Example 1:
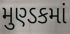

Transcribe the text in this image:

મુણ્ડકમાં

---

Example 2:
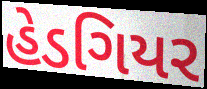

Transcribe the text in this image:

હેડગિયર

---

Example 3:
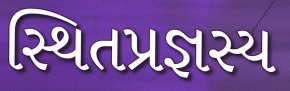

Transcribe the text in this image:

સ્થિતપ્રજ્ઞસ્ય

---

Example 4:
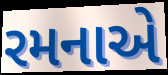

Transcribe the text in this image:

રમનાએ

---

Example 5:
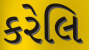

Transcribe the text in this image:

કરેલિ